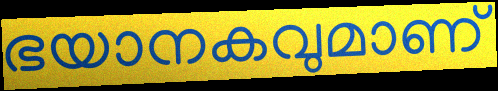
ഭയാനകവുമാണ്